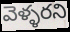
వెళ్ళరని